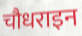
चौधराइन